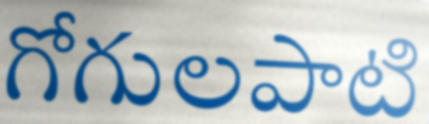
గోగులపాటి